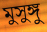
মুসুঙ্গু